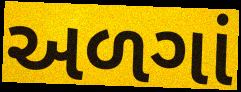
અળગાં